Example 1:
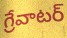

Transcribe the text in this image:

గ్రేవాటర్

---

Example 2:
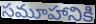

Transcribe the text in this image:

సమూహానికి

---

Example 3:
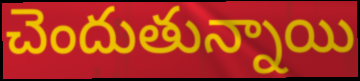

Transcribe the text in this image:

చెందుతున్నాయి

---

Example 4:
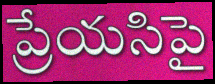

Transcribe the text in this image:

ప్రేయసిపై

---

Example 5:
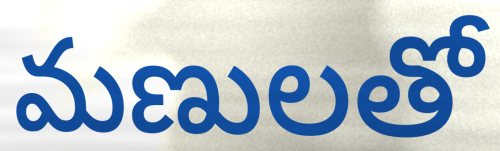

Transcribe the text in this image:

మణులతో